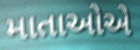
માતાઓએ